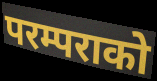
परम्पराको